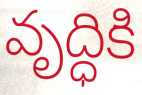
వృద్ధికి